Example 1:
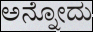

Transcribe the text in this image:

ಅನ್ನೋದು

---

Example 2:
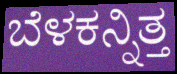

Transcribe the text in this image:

ಬೆಳಕನ್ನಿತ್ತ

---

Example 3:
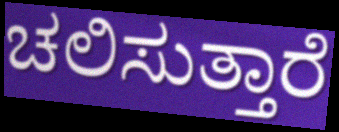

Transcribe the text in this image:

ಚಲಿಸುತ್ತಾರೆ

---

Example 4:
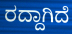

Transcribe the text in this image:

ರದ್ದಾಗಿದೆ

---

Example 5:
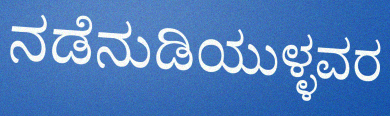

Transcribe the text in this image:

ನಡೆನುಡಿಯುಳ್ಳವರ